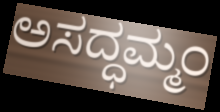
ಅಸದ್ಧಮ್ಮಂ